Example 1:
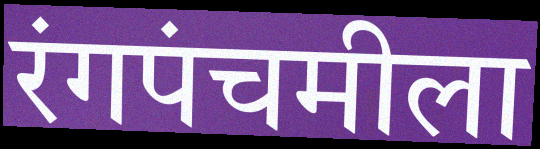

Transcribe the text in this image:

रंगपंचमीला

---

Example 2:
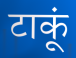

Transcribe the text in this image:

टाकूं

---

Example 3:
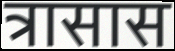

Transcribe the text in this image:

त्रासास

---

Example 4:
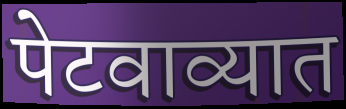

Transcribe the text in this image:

पेटवाव्यात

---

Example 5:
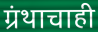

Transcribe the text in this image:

ग्रंथाचाही